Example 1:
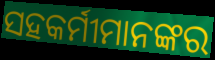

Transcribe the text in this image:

ସହକର୍ମୀମାନଙ୍କର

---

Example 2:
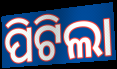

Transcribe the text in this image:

ପିଟିଲା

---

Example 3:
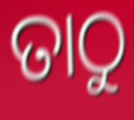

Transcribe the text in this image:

ତାଠୁ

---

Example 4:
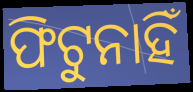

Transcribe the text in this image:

ଫିଟୁନାହିଁ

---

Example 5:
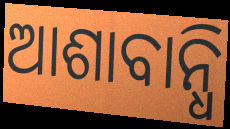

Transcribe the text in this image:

ଆଶାବାନ୍ଧି